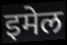
इमेल